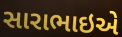
સારાભાઇએ